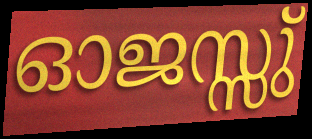
ഓജസ്സു്